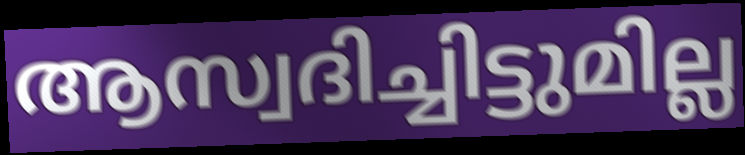
ആസ്വദിച്ചിട്ടുമില്ല